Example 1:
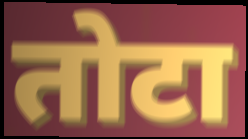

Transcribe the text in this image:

तोटा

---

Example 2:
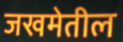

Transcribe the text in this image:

जखमेतील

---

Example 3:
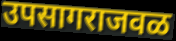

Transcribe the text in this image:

उपसागराजवळ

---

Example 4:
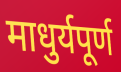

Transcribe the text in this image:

माधुर्यपूर्ण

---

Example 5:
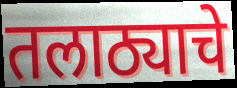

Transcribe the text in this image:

तलाठ्याचे